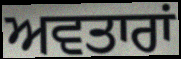
ਅਵਤਾਰਾਂ